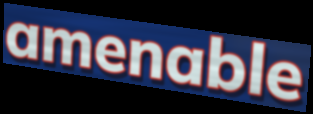
amenable